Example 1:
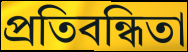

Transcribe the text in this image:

প্রতিবন্ধিতা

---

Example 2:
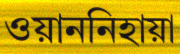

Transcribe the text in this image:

ওয়াননিহায়া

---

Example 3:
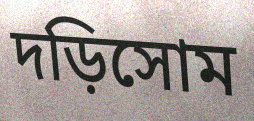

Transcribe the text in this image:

দড়িসোম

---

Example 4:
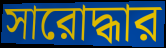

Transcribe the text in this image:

সারোদ্ধার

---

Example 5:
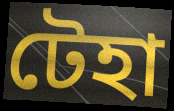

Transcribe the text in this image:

টেহা